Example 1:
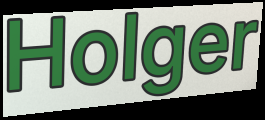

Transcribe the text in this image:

Holger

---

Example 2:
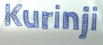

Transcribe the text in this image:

Kurinji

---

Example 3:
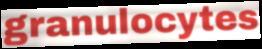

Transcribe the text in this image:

granulocytes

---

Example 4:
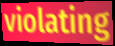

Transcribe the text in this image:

violating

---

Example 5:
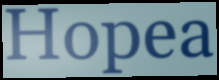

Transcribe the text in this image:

Hopea